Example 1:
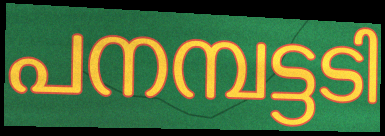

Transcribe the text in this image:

പനമ്പട്ടടി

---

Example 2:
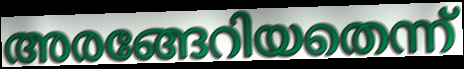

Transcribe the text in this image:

അരങ്ങേറിയതെന്ന്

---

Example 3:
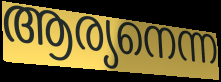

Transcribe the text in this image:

ആര്യനെന്ന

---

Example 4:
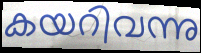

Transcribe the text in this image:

കയറിവന്നു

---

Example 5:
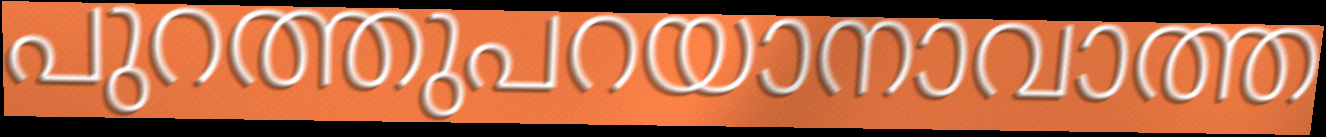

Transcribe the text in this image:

പുറത്തുപറയാനാവാത്ത